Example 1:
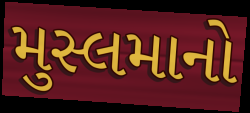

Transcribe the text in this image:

મુસ્લમાનો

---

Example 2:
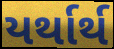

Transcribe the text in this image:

યર્થાર્થ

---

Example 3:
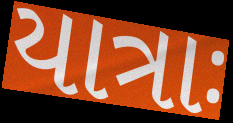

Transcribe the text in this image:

યાત્રાઃ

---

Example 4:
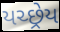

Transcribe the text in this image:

યચ્છ્રેય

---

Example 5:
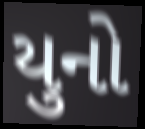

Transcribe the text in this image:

યુનો